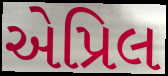
એપ્રિલ